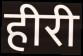
हीरी